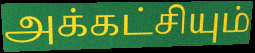
அக்கட்சியும்